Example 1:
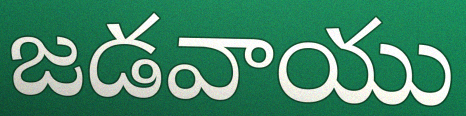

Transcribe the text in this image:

జడవాయు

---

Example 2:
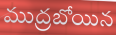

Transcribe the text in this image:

ముద్రబోయిన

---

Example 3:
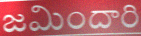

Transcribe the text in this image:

జమిందారి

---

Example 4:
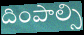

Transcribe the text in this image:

దింపాల్సి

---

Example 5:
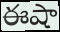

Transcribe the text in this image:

ఈషా